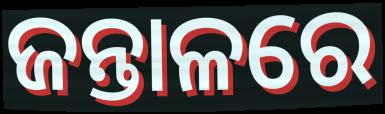
ଜନ୍ତାଳରେ